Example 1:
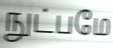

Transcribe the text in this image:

நுட்பமே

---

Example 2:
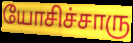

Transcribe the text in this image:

யோசிச்சாரு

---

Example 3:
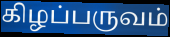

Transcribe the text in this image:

கிழப்பருவம்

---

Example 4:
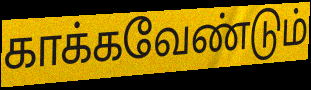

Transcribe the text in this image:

காக்கவேண்டும்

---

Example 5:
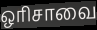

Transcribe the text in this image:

ஒரிசாவை